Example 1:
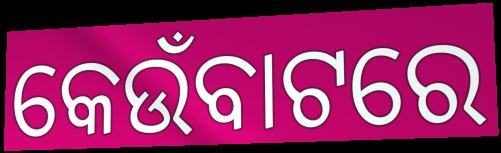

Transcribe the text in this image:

କେଉଁବାଟରେ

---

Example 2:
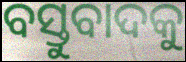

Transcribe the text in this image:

ବସ୍ତୁବାଦକୁ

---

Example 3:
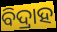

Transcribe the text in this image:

ବିଦ୍ରାହ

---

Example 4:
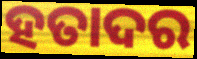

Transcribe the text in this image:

ହତାଦର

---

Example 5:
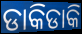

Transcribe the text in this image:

ଡାକିଡାକି